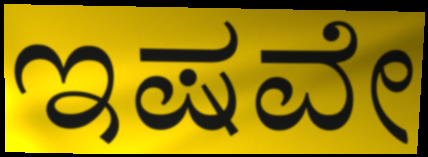
ಇಷವೇ